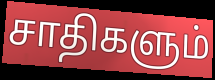
சாதிகளும்